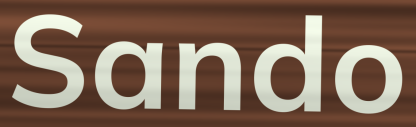
Sando